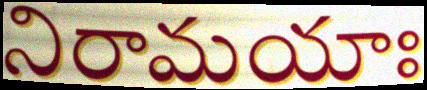
నిరామయాః